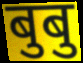
बुबु